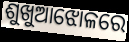
ଶୁଖୁଆଝୋଳରେ